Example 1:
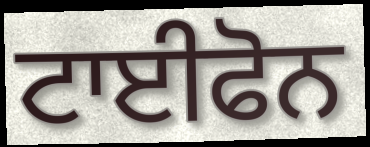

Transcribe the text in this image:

ਟਾਈਫੋਨ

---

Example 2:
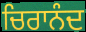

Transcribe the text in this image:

ਚਿਰਾਨੰਦ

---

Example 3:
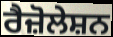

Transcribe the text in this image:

ਰੈਜ਼ੋਲੇਸ਼ਨ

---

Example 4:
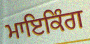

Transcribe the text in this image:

ਮਾਇਕਿੰਗ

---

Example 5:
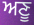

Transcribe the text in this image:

ਅਣੂ